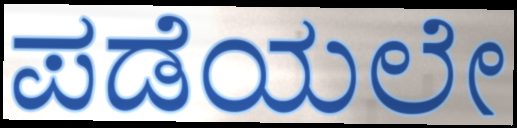
ಪಡೆಯಲೇ